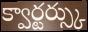
క్వార్టర్స్కు